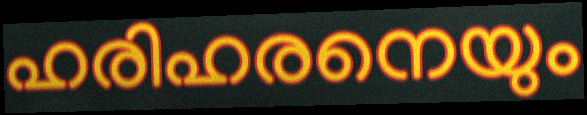
ഹരിഹരനെയും